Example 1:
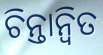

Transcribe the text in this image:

ଚିନ୍ତାନ୍ୱିତ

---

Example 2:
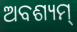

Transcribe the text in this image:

ଅବଶ୍ୟମ୍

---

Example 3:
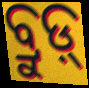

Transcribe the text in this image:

ବ୍ରୁଡ଼୍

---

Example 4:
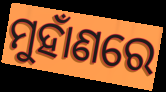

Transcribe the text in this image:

ମୁହାଁଣରେ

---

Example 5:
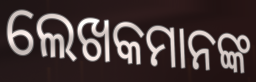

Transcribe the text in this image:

ଲେଖକମାନଙ୍କ